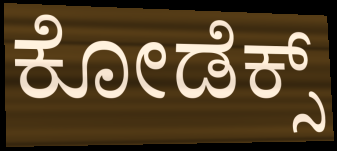
ಕೋಡೆಕ್ಸ್